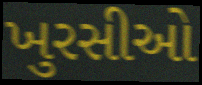
ખુરસીઓ